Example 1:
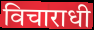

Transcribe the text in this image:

विचाराधी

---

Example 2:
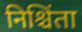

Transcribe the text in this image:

निश्चिंता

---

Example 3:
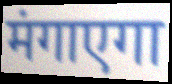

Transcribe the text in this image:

मंगाएगा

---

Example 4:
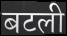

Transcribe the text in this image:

बटली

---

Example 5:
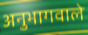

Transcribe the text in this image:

अनुभागवाले